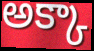
అక్కా